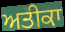
ਅਤੀਕਾ